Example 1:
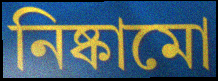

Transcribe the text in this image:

নিষ্কামো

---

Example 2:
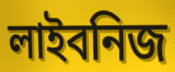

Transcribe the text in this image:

লাইবনিজ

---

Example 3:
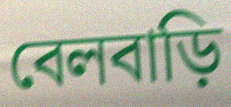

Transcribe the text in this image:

বেলবাড়ি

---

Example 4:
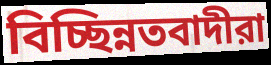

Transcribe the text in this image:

বিচ্ছিন্নতবাদীরা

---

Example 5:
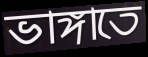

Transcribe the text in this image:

ভাঙ্গাতে